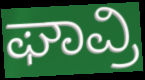
ಘಾವ್ರಿ